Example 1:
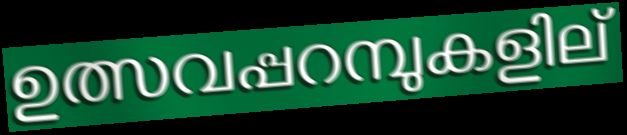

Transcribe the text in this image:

ഉത്സവപ്പറമ്പുകളില്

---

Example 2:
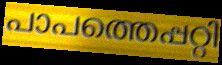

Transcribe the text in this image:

പാപത്തെപ്പറ്റി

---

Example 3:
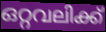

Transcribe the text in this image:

ഒറ്റവലിക്ക്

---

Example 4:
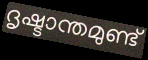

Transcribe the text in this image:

ദൃഷ്ടാന്തമുണ്ട്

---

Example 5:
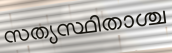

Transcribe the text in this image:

സത്യസ്ഥിതാശ്ച